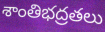
శాంతిభద్రతలు